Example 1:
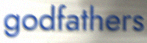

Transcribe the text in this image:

godfathers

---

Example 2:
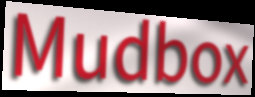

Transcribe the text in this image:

Mudbox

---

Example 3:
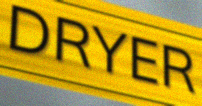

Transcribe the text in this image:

DRYER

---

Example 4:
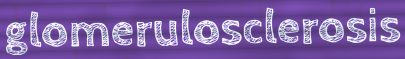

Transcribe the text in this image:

glomerulosclerosis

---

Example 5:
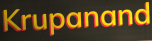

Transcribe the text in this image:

Krupanand